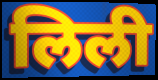
लिली